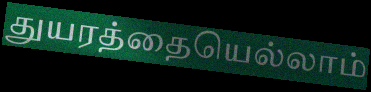
துயரத்தையெல்லாம்